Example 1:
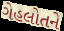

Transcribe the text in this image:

ગેહલોતને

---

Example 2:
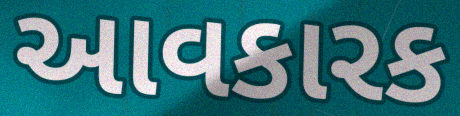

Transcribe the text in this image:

આવકારક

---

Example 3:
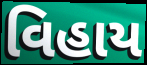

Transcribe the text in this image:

વિહાય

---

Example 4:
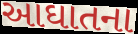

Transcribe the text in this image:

આઘાતના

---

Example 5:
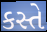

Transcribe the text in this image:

કસ્તે